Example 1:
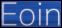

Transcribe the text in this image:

Eoin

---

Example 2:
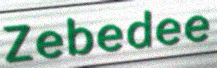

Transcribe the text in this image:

Zebedee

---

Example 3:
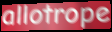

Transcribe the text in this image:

allotrope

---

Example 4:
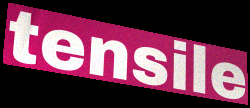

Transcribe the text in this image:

tensile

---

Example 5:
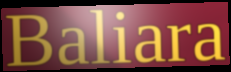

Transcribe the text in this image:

Baliara